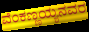
ವೆಂಕಣ್ಣಯ್ಯನವರ